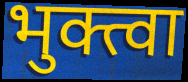
भुक्त्वा